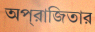
অপ্‌রাজিতার